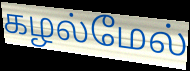
கழல்மேல்